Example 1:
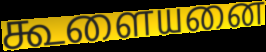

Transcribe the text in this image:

கூளையனை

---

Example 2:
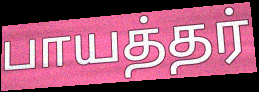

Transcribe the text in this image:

பாயத்தர்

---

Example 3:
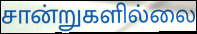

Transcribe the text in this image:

சான்றுகளில்லை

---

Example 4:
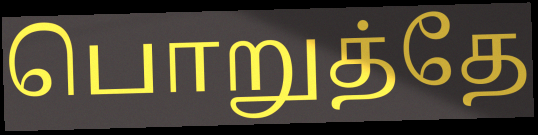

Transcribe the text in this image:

பொறுத்தே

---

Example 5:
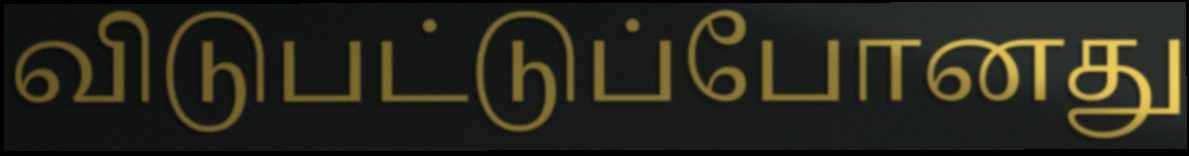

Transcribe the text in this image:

விடுபட்டுப்போனது